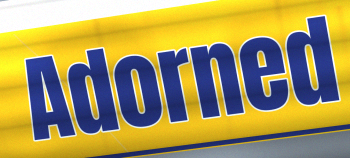
Adorned